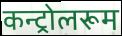
कन्ट्रोलरूम